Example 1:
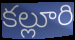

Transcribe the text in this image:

కల్లూరి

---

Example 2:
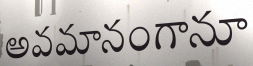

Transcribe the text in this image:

అవమానంగానూ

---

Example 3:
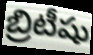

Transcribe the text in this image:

బ్రిటీషు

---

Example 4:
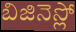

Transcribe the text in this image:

బిజినెస్లో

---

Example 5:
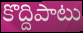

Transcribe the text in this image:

కొద్దిపాటు